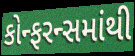
કોન્ફરન્સમાંથી